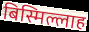
बिस्मिल्‍लाह